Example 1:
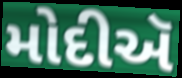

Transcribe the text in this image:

મોદીઍ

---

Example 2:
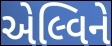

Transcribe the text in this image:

એલ્વિને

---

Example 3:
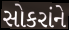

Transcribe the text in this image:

સોકરાંને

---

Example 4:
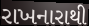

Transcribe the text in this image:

રાખનારાથી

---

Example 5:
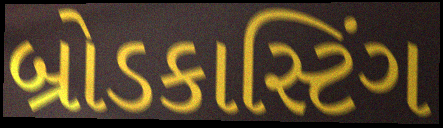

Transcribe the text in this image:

બ્રોડકાસ્ટિંગ